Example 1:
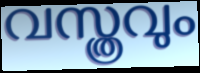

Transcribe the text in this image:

വസ്ത്രവും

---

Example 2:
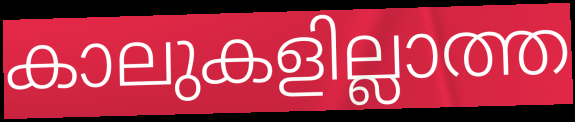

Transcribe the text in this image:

കാലുകളില്ലാത്ത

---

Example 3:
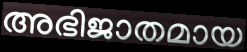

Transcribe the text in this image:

അഭിജാതമായ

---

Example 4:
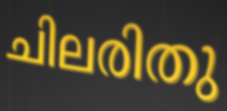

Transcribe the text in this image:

ചിലരിതു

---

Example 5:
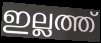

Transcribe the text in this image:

ഇല്ലത്ത്